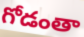
గోడంతా